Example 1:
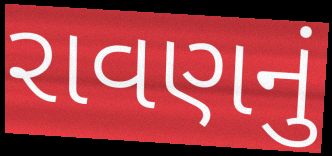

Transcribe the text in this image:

રાવણનું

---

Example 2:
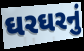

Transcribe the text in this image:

ઘરઘરનું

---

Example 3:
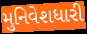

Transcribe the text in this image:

મુનિવેશધારી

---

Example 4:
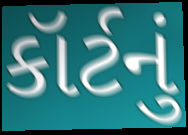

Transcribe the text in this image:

કૉર્ટનું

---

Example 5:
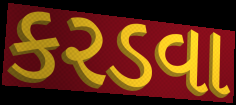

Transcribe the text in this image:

કરડવા